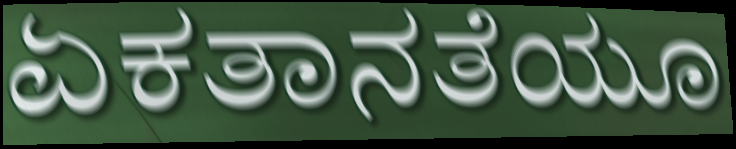
ಏಕತಾನತೆಯೂ